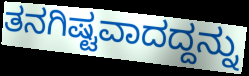
ತನಗಿಷ್ಟವಾದದ್ದನ್ನು